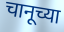
चानूच्या